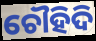
ଚୌହିଦି